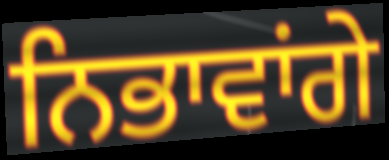
ਨਿਭਾਵਾਂਗੇ